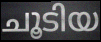
ചൂടിയ